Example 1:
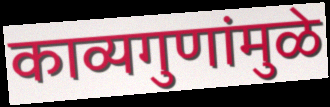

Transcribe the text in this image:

काव्यगुणांमुळे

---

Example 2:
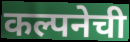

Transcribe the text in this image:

कल्पनेची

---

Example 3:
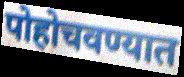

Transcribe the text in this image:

पोहोचवण्यात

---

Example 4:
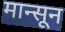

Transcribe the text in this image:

मान्सून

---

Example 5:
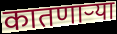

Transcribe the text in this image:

कातणाऱ्या